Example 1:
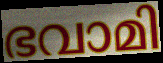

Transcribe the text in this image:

ഭവാമി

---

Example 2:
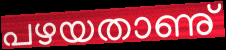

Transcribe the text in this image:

പഴയതാണു്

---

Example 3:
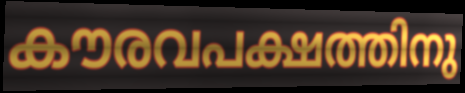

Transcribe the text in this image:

കൗരവപക്ഷത്തിനു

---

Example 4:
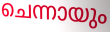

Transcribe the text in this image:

ചെന്നായും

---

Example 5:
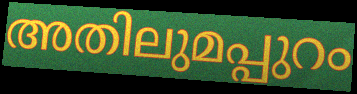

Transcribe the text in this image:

അതിലുമപ്പുറം